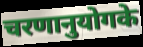
चरणानुयोगके